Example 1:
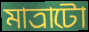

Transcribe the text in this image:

মাত্ৰাটো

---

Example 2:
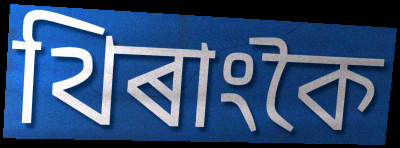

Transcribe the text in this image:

থিৰাংকৈ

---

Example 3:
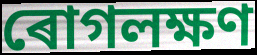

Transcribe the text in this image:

ৰোগলক্ষণ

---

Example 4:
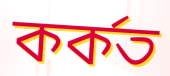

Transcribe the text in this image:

কৰ্কত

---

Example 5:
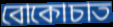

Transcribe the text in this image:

বোকোচাত